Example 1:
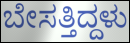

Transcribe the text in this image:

ಬೇಸತ್ತಿದ್ದಳು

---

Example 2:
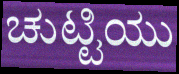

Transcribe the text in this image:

ಚುಟ್ಟಿಯು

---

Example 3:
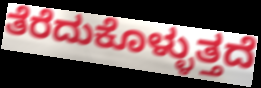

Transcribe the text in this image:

ತೆರೆದುಕೊಳ್ಳುತ್ತದೆ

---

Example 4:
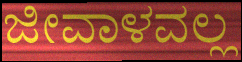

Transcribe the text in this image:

ಜೀವಾಳವಲ್ಲ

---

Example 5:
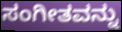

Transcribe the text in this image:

ಸಂಗೀತವನ್ನು